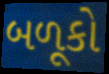
બળૂકો